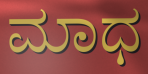
ಮಾಧ